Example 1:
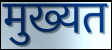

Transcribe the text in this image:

मुख्‍यत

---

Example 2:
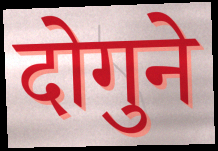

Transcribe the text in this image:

दोगुने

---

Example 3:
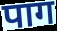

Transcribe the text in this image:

पाग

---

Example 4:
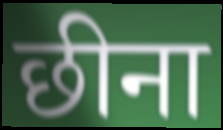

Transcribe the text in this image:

छीना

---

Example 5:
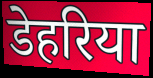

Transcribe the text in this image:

डेहरिया